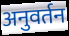
अनुवर्तन